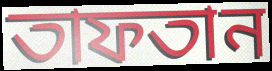
তাফতান